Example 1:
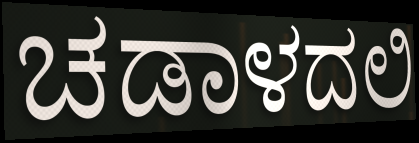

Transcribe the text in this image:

ಚಡಾಳದಲಿ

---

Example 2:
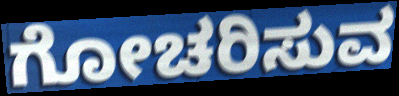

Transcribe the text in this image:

ಗೋಚರಿಸುವ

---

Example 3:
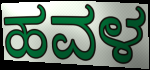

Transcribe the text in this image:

ಹವಳ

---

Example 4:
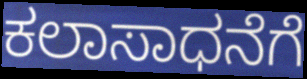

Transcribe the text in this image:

ಕಲಾಸಾಧನೆಗೆ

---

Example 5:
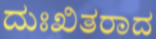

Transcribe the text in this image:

ದುಃಖಿತರಾದ